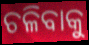
ଚଳିବାକୁ